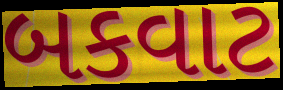
બકવાટ